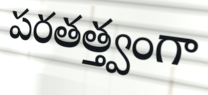
పరతత్త్వంగా